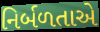
નિર્બળતાએ